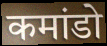
कमांडो